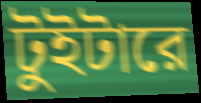
টুইটারে